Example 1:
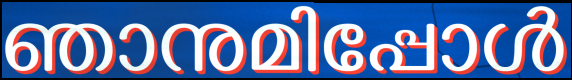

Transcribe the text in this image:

ഞാനുമിപ്പോൾ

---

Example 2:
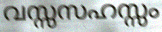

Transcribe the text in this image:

വസ്സസഹസ്സം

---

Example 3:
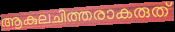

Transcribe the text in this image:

ആകുലചിത്തരാകരുത്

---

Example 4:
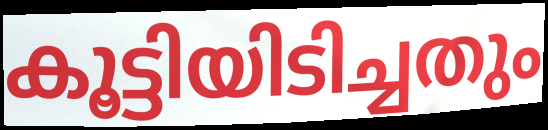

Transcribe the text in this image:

കൂട്ടിയിടിച്ചതും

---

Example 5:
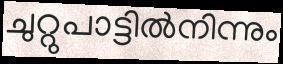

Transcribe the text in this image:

ചുറ്റുപാട്ടിൽനിന്നും